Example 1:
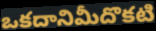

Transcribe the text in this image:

ఒకదానిమీదొకటి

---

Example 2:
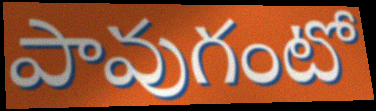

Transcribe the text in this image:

పావుగంటో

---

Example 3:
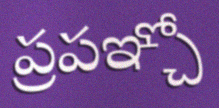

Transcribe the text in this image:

ప్రపఞ్చో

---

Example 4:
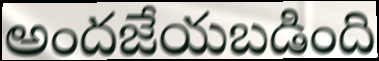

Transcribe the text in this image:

అందజేయబడింది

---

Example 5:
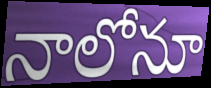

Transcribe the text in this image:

నాలోనూ